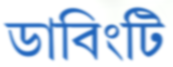
ডাবিংটি